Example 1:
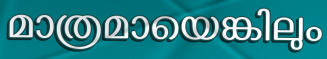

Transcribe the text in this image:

മാത്രമായെങ്കിലും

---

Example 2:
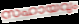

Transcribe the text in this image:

സഹായവും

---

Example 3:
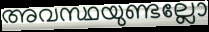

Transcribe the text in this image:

അവസ്ഥയുണ്ടല്ലോ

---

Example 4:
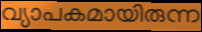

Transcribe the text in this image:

വ്യാപകമായിരുന്ന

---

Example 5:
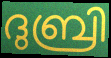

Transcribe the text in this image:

ദുബ്രി